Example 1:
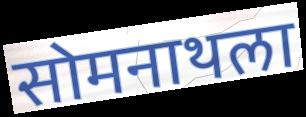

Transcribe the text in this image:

सोमनाथला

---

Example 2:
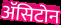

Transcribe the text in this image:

ॲसिटोन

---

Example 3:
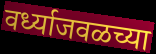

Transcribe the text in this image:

वर्ध्याजवळच्या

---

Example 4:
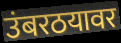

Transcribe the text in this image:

उंबरठयावर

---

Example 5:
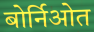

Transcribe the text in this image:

बोर्निओत